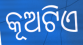
କୂଅଟିଏ